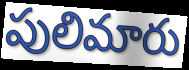
పులిమారు